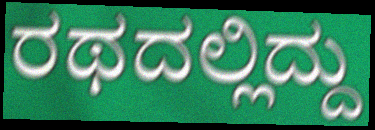
ರಥದಲ್ಲಿದ್ದು